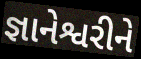
જ્ઞાનેશ્વરીને